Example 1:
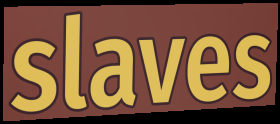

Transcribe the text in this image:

slaves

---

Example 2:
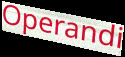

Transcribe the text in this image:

Operandi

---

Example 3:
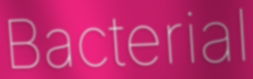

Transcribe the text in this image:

Bacterial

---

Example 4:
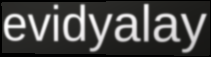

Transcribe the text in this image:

evidyalay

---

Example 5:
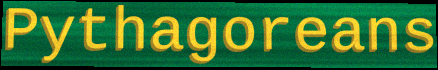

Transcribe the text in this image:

Pythagoreans